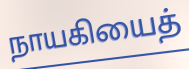
நாயகியைத்